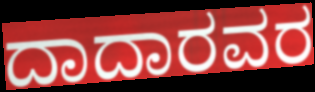
ದಾದಾರವರ